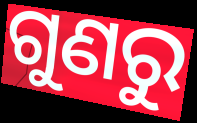
ଗୁଣରୁ